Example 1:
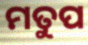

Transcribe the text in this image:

ମତୁପ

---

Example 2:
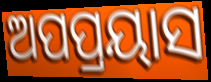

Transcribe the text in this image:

ଅପପ୍ରୟାସ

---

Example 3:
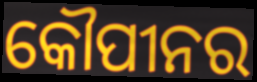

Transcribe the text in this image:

କୌପୀନର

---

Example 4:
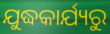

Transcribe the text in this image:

ଯୁଦ୍ଧକାର୍ଯ୍ୟରୁ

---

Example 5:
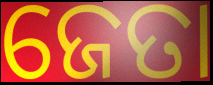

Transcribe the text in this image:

ଜେତା